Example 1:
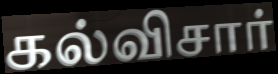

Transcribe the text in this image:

கல்விசார்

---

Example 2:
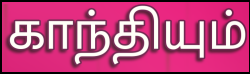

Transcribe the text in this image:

காந்தியும்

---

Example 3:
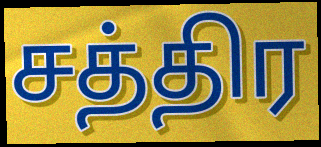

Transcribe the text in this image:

சத்திர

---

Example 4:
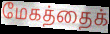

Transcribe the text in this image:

மேகத்தைக்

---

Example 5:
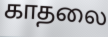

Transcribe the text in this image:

காதலை